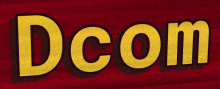
Dcom